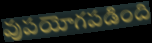
వుపయోగపడింది